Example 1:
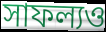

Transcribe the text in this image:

সাফল্যও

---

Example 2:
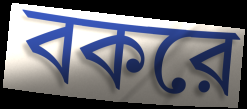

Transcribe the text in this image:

বকরে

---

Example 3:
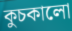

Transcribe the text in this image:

কুচকালো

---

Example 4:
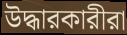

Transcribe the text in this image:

উদ্ধারকারীরা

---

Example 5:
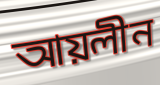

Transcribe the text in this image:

আয়লীন